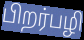
பிறர்பழி